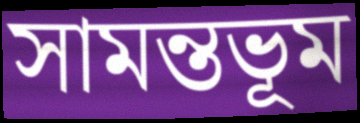
সামন্তভূম